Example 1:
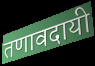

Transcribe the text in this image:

तणावदायी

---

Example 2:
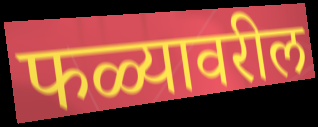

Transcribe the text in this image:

फळ्यावरील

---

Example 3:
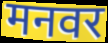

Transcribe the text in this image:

मनवर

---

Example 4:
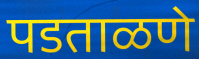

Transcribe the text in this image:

पडताळणे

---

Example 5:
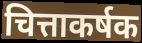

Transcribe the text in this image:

चित्ताकर्षक